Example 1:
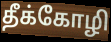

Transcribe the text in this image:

தீக்கோழி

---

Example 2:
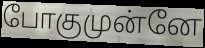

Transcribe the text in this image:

போகுமுன்னே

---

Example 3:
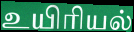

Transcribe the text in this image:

உயிரியல்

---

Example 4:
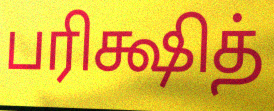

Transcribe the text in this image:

பரிக்ஷித்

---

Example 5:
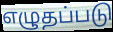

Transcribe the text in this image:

எழுதப்படு